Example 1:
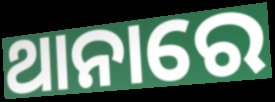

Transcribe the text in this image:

ଥାନାରେ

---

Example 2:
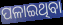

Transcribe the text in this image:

ପଳାଇଥିବା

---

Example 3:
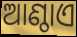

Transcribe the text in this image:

ଆଣ୍ଠାଏ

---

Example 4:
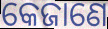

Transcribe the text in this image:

କେଜାଣେ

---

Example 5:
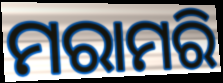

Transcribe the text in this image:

ମରାମରି